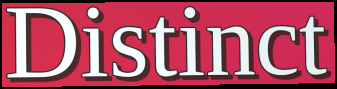
Distinct